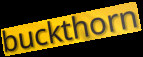
buckthorn